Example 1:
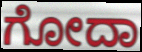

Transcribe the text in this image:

ಗೋದಾ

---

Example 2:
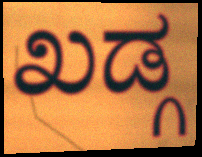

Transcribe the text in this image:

ಖಡ್ಗ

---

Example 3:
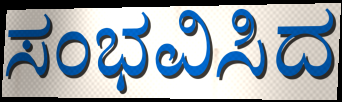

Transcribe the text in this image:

ಸಂಭವಿಸಿದ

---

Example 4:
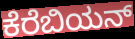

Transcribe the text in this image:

ಕೆರೆಬಿಯನ್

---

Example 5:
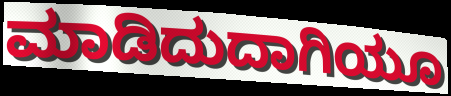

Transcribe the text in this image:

ಮಾಡಿದುದಾಗಿಯೂ